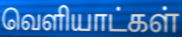
வெளியாட்கள்